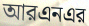
আরএনএর